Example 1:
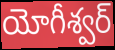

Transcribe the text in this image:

యోగీశ్వర్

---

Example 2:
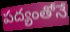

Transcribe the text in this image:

పద్యంతోనే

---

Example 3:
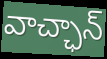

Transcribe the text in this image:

వాచ్ఛాన్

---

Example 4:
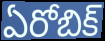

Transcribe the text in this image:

ఏరోబిక్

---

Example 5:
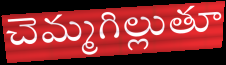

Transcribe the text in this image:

చెమ్మగిల్లుతూ